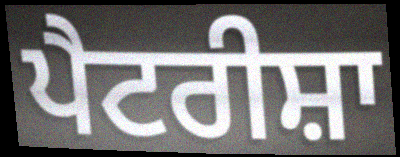
ਪੈਟਰੀਸ਼ਾ